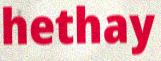
hethay